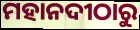
ମହାନଦୀଠାରୁ